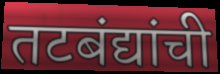
तटबंद्यांची